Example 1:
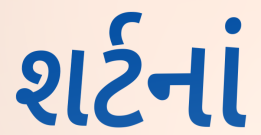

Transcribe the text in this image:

શર્ટનાં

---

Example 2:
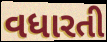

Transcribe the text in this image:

વધારતી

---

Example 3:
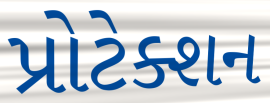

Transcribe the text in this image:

પ્રોટેક્શન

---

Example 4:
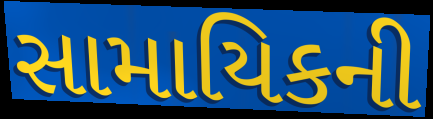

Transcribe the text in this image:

સામાયિકની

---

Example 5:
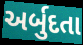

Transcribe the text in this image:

અર્બુદતા